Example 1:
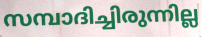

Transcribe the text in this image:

സമ്പാദിച്ചിരുന്നില്ല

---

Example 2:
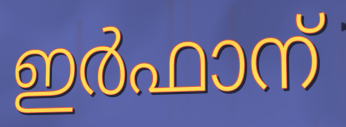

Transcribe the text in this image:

ഇർഫാന്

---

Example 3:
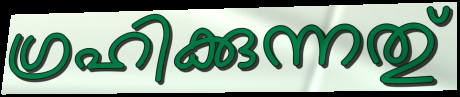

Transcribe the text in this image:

ഗ്രഹിക്കുന്നതു്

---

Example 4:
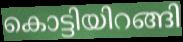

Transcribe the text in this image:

കൊട്ടിയിറങ്ങി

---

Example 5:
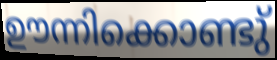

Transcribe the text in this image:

ഊന്നിക്കൊണ്ടു്